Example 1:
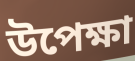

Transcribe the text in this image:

উপেক্ষা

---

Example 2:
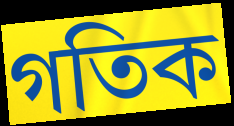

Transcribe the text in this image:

গতিক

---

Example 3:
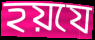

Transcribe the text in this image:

হয়যে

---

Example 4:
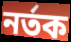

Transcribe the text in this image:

নৰ্তক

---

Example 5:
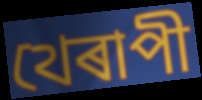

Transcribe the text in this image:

থেৰাপী